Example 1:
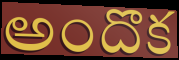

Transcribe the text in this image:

అందొక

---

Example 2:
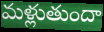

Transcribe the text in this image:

మళ్లుతుందా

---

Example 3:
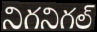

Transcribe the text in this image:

నిగనిగల్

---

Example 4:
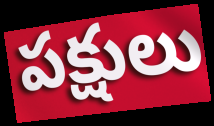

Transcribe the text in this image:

పక్షులు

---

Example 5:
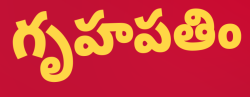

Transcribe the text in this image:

గృహపతిం